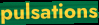
pulsations